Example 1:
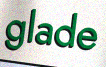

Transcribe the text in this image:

glade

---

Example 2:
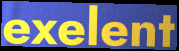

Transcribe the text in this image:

exelent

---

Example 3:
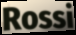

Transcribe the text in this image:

Rossi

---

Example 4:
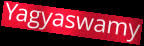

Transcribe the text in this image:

Yagyaswamy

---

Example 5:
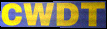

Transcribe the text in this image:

CWDT